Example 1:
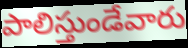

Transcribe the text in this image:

పాలిస్తుండేవారు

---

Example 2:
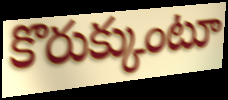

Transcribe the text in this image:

కొరుక్కుంటూ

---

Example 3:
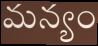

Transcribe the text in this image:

మన్యం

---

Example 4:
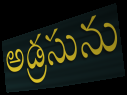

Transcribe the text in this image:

అడ్రసును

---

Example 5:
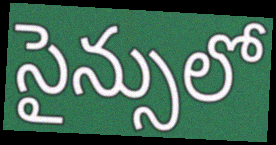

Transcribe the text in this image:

సైన్సులో